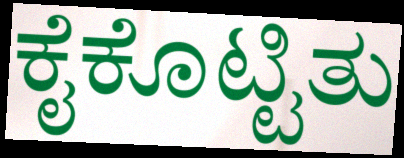
ಕೈಕೊಟ್ಟಿತು